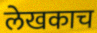
लेखकाच